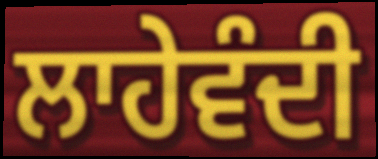
ਲਾਹੇਵੰਦੀ